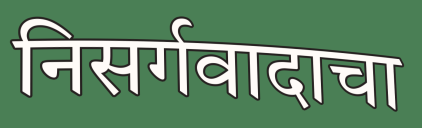
निसर्गवादाचा